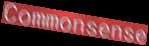
Commonsense